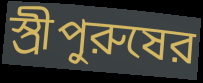
স্ত্রীপুরুষের